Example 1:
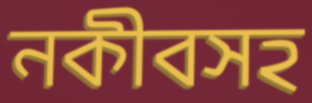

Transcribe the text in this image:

নকীবসহ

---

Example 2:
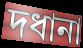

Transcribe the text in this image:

দধানা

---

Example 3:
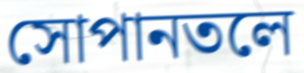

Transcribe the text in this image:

সোপানতলে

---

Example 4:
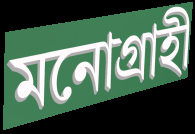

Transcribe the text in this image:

মনোগ্রাহী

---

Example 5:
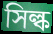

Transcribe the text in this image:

সিল্ক